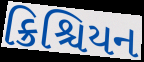
ક્રિશ્ચિયન